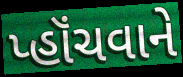
પ્હૉંચવાને